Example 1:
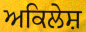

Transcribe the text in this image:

ਅਕਿਲੇਸ਼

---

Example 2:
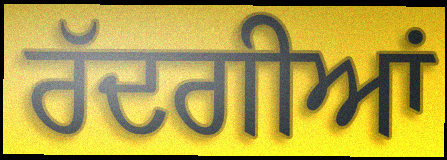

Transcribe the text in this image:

ਰੱਦਗੀਆਂ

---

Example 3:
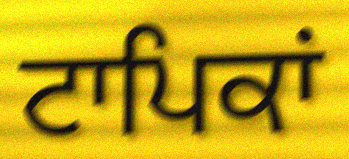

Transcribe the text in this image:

ਟਾਪਿਕਾਂ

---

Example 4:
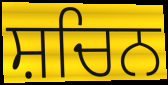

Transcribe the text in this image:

ਸ਼ਚਿਨ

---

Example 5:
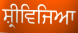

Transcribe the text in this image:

ਸ਼੍ਰੀਵਿਜਿਆ